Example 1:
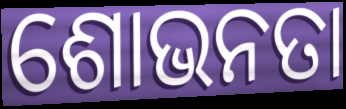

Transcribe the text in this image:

ଶୋଭନତା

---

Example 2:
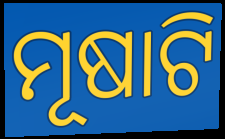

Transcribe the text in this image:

ମୂଷାଟି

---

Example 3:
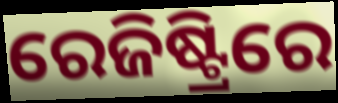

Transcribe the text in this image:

ରେଜିଷ୍ଟ୍ରିରେ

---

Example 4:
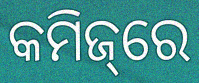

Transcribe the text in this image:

କମିଜ୍‌ରେ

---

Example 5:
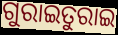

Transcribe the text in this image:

ଗୁରାଇତୁରାଇ